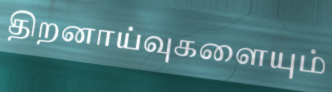
திறனாய்வுகளையும்